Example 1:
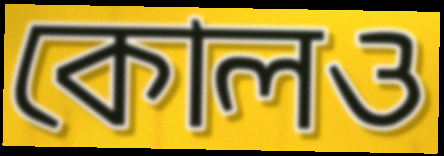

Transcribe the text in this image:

কোলও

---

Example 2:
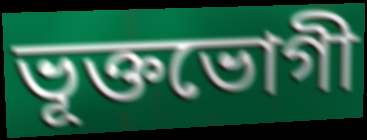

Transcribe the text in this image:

ভূক্তভোগী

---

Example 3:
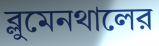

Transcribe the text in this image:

ব্লুমেনথালের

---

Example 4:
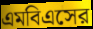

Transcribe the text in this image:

এমবিএসের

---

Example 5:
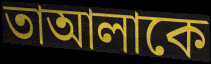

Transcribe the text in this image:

তাআলাকে